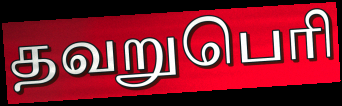
தவறுபெரி